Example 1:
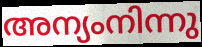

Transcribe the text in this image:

അന്യംനിന്നു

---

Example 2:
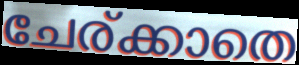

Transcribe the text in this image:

ചേര്ക്കാതെ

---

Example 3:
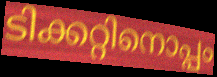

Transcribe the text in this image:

ടിക്കറ്റിനൊപ്പം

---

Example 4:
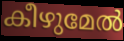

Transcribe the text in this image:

കീഴുമേൽ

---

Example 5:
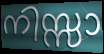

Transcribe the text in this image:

നിസ്സാ